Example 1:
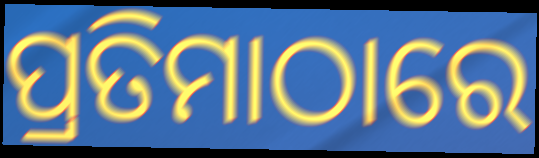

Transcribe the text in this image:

ପ୍ରତିମାଠାରେ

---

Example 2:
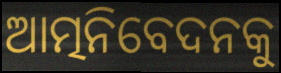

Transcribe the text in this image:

ଆତ୍ମନିବେଦନକୁ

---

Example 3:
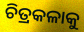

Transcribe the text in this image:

ଚିତ୍ରକଳାକୁ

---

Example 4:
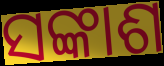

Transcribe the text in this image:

ସଙ୍କାଶ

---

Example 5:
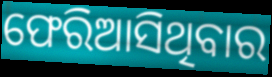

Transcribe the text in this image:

ଫେରିଆସିଥିବାର